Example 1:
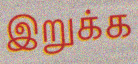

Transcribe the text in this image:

இறுக்க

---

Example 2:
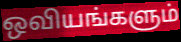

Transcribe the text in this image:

ஒவியங்களும்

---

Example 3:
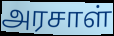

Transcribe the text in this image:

அரசாள்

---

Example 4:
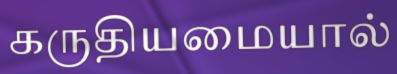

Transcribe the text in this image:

கருதியமையால்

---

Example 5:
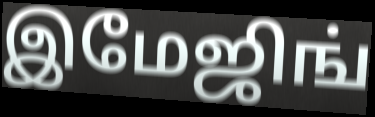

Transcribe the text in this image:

இமேஜிங்